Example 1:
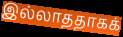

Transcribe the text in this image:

இல்லாததாகக்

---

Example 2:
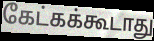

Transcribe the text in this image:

கேட்கக்கூடாது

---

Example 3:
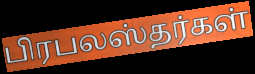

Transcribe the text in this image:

பிரபலஸ்தர்கள்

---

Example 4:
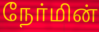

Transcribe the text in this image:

நேர்மின்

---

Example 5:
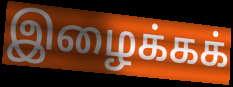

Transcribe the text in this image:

இழைக்கக்